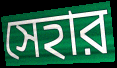
সেহার